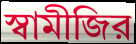
স্বামীজির